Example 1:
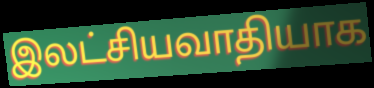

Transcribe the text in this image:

இலட்சியவாதியாக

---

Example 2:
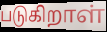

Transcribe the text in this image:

படுகிறாள்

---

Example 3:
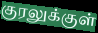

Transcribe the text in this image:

குரலுக்குள்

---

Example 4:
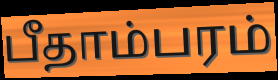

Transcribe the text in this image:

பீதாம்பரம்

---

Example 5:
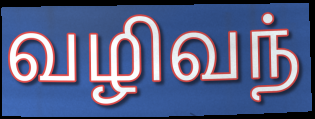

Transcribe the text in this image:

வழிவந்